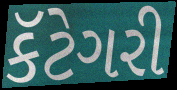
કૅટેગરી